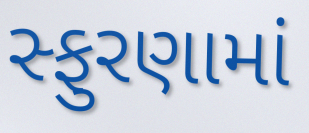
સ્ફુરણામાં